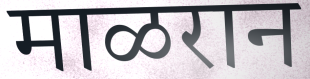
माळरान